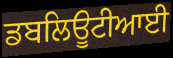
ਡਬਲਿਊਟੀਆਈ